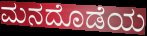
ಮನದೊಡೆಯ